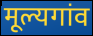
मूल्यगांव